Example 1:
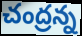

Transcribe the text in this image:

చంద్రన్న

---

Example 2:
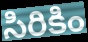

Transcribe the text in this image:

సిరికిం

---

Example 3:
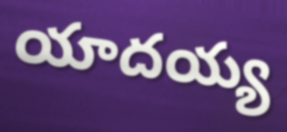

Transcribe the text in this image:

యాదయ్య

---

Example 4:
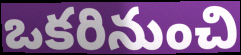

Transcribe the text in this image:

ఒకరినుంచి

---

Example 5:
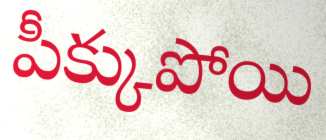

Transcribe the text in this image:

పీక్కుపోయి